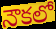
నౌకలో